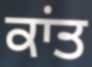
ਕਾਂਤ